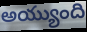
అయ్యుంది